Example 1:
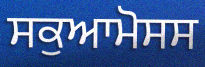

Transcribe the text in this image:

ਸਕੁਆਮੋਸਸ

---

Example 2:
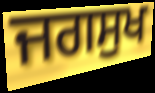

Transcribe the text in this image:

ਜਗਸੁਖ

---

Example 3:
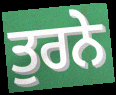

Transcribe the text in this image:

ਤੁਰਨੇ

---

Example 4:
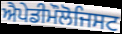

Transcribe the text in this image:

ਐਪੇਡੀਮੌਲੋਜਿਸਟ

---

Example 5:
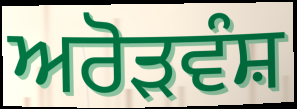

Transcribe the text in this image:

ਅਰੋੜਵੰਸ਼